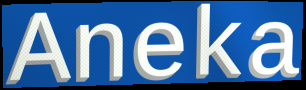
Aneka